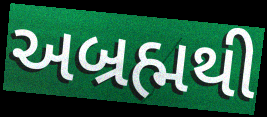
અબ્રહ્મથી